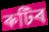
ৰুটিৰ